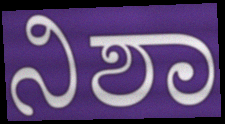
ನಿಶಾ